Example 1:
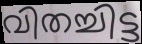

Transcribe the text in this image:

വിതച്ചിട്ട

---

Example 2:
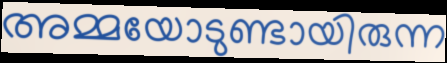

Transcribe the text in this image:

അമ്മയോടുണ്ടായിരുന്ന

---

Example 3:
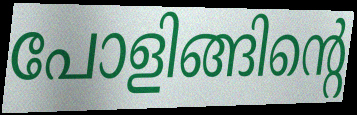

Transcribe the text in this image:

പോളിങ്ങിന്റെ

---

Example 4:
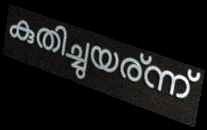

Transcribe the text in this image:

കുതിച്ചുയര്ന്ന്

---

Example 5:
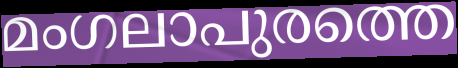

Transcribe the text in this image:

മംഗലാപുരത്തെ